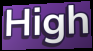
High